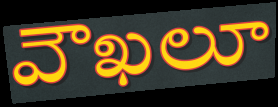
వౌఖలూ